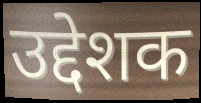
उद्देशक